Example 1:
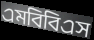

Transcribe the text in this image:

এমবিবিএস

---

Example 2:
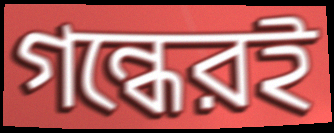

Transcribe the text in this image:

গন্ধেরই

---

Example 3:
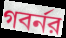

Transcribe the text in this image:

গবর্নর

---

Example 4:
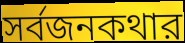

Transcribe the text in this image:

সর্বজনকথার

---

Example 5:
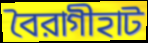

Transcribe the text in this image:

বৈরাগীহাট